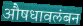
औषधावलंबन